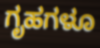
ಗೃಹಗಳೂ